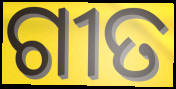
ଗୀତ